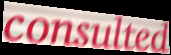
consulted